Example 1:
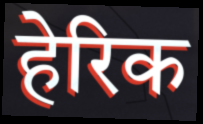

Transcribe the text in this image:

हेरिक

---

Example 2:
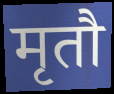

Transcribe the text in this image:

मृतौ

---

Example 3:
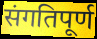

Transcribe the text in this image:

संगतिपूर्ण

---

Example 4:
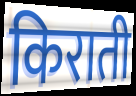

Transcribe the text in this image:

किराती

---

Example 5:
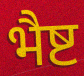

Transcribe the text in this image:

भैष्ट